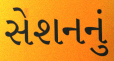
સેશનનું